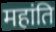
महांति